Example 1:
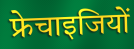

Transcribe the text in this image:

फ्रेचाइजियों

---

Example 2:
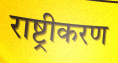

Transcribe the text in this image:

राष्ट्रीकरण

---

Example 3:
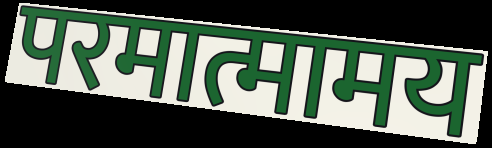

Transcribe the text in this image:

परमात्मामय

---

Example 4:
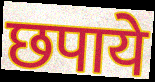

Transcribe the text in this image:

छपाये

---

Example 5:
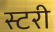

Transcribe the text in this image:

स्टरी